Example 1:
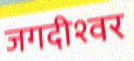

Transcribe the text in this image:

जगदीश्वर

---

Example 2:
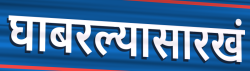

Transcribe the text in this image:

घाबरल्यासारखं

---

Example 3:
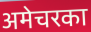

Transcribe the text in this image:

अमेचरका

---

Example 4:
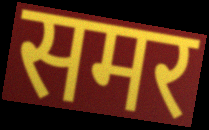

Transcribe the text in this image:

समर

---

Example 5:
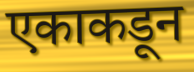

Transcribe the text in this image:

एकाकडून